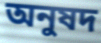
অনুষদ